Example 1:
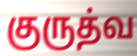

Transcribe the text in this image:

குருத்வ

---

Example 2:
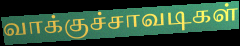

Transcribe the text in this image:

வாக்குச்சாவடிகள்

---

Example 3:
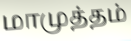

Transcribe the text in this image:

மாமுத்தம்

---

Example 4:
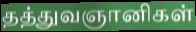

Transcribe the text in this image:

தத்துவஞானிகள்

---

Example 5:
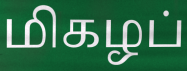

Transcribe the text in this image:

மிகழப்